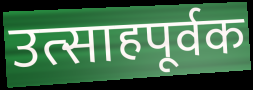
उत्‍साहपूर्वक